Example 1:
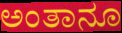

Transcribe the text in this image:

ಅಂತಾನೂ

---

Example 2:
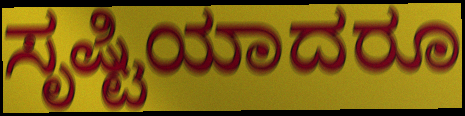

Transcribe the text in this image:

ಸೃಷ್ಟಿಯಾದರೂ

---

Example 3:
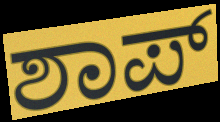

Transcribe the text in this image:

ಶಾಪ್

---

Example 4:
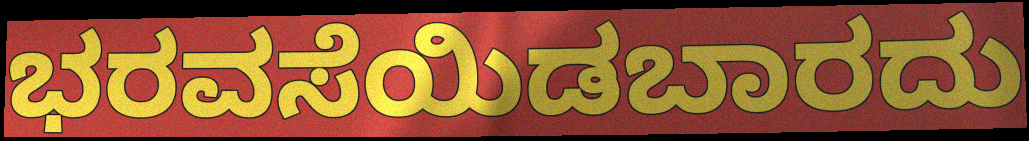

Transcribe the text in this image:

ಭರವಸೆಯಿಡಬಾರದು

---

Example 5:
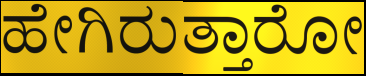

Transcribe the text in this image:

ಹೇಗಿರುತ್ತಾರೋ